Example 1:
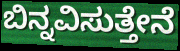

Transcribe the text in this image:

ಬಿನ್ನವಿಸುತ್ತೇನೆ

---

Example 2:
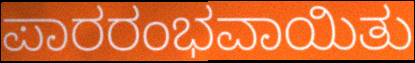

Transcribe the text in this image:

ಪಾರರಂಭವಾಯಿತು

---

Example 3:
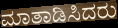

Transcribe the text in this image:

ಮಾತಾಡಿಸಿದರು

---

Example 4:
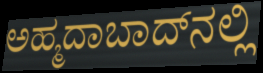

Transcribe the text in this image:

ಅಹ್ಮದಾಬಾದ್‍ನಲ್ಲಿ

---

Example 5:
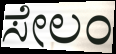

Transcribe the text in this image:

ಸೇಲಂ